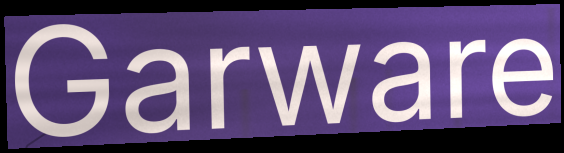
Garware